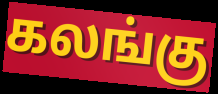
கலங்கு